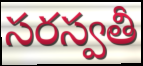
సరస్వతీ